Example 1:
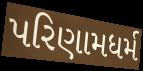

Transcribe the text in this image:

પરિણામધર્મ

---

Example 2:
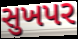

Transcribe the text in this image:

સુખપર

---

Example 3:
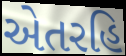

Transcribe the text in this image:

એતરહિ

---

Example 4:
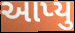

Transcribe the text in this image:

આપ્યુ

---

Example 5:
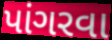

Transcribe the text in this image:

પાંગરવા